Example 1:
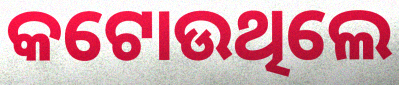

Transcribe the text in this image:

କଟୋଉଥିଲେ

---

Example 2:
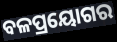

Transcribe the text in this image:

ବଳପ୍ରୟୋଗର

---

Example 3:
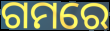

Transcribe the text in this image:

ଗମରେ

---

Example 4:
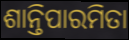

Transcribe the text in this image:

ଶାନ୍ତିପାରମିତା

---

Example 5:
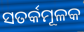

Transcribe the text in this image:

ସତର୍କମୂଳକ